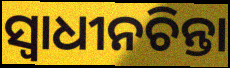
ସ୍ୱାଧୀନଚିନ୍ତା